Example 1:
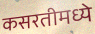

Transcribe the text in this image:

कसरतीमध्ये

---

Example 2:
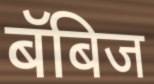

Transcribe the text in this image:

बॅबिज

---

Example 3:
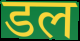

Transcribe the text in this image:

डल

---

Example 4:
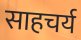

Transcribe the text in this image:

साहचर्य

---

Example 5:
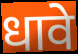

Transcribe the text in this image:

धावे